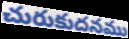
చురుకుదనము